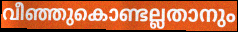
വീഞ്ഞുകൊണ്ടല്ലതാനും